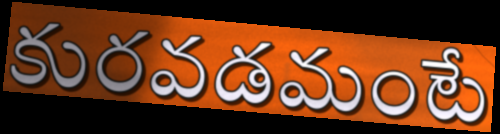
కురవడమంటే